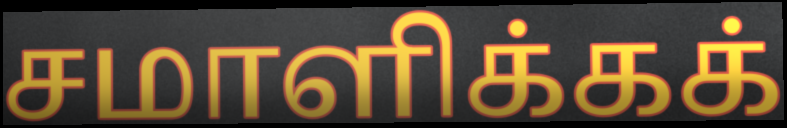
சமாளிக்கக்